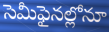
సెమీఫైనల్లోనూ